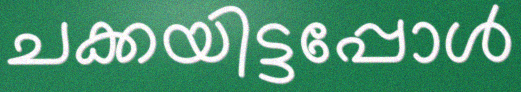
ചക്കയിട്ടപ്പോൾ